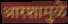
आरशामुळे